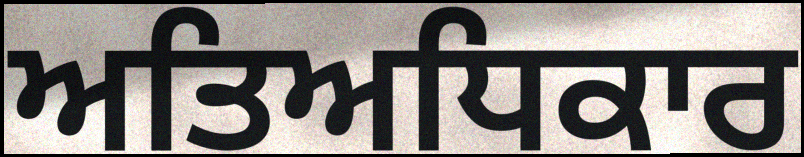
ਅਤਿਅਧਿਕਾਰ